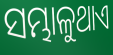
ସମ୍ଭାଳୁଥାଏ